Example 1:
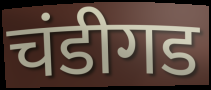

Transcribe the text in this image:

चंडीगड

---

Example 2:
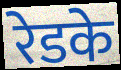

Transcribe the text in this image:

रेडके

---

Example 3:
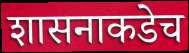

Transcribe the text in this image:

शासनाकडेच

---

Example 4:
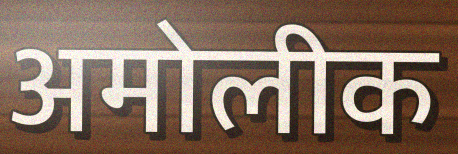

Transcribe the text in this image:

अमोलीक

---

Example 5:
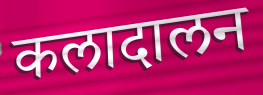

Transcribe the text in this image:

कलादालन